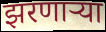
झरणाऱ्या